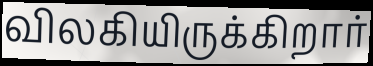
விலகியிருக்கிறார்